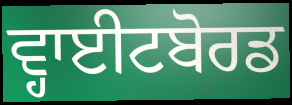
ਵ੍ਹਾਈਟਬੋਰਡ